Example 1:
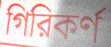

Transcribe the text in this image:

গিরিকর্ণ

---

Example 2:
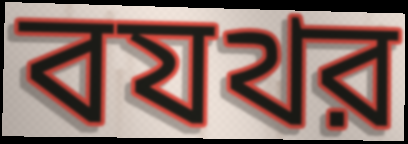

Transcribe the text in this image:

বযথর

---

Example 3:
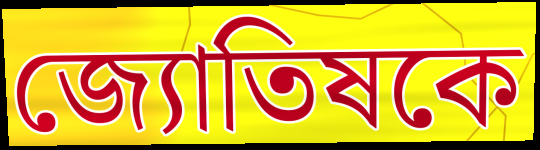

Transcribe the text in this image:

জ্যোতিষকে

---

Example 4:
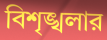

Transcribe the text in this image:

বিশৃঙ্খলার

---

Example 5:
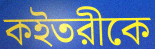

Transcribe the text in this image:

কইতরীকে